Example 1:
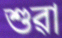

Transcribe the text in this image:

শুৱা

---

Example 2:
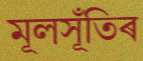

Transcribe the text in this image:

মূলসূঁতিৰ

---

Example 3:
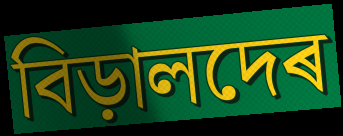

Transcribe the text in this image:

বিড়ালদেৰ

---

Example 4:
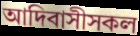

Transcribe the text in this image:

আদিবাসীসকল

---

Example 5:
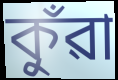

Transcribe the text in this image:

কুঁৱা